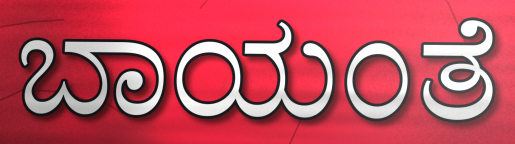
ಬಾಯಂತೆ